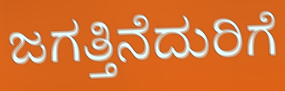
ಜಗತ್ತಿನೆದುರಿಗೆ